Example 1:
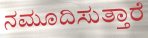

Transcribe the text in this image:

ನಮೂದಿಸುತ್ತಾರೆ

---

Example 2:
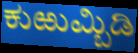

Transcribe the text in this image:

ಕುಱುಮ್ಬಿಡಿ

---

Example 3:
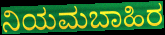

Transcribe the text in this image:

ನಿಯಮಬಾಹಿರ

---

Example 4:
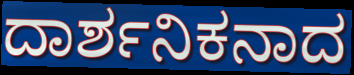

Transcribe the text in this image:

ದಾರ್ಶನಿಕನಾದ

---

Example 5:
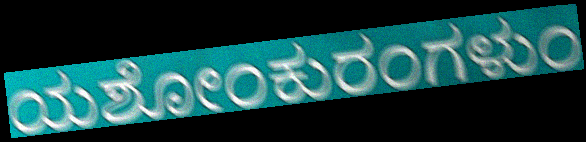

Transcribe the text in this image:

ಯಶೋಂಕುರಂಗಳುಂ